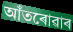
আঁতৰোৱাৰ